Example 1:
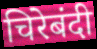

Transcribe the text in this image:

चिरेबंदी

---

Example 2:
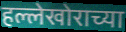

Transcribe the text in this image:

हल्लेखोराच्या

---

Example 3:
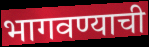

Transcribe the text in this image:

भागवण्याची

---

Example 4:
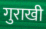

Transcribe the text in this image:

गुराखी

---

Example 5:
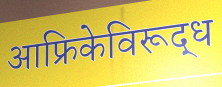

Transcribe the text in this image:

आफ्रिकेविरूद्ध